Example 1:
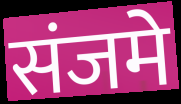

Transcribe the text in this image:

संजमे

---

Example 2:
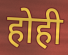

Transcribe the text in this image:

होही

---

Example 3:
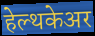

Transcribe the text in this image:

हेल्थकेअर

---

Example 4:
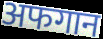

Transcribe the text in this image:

अफगान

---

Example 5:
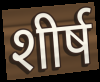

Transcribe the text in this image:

शीर्ष